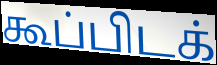
கூப்பிடக்